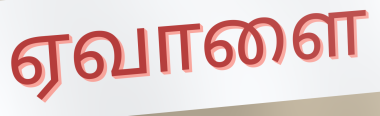
ஏவாளை